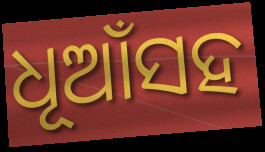
ଧୂଆଁସହ